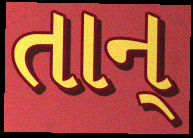
તાન્